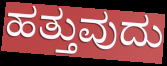
ಹತ್ತುವುದು